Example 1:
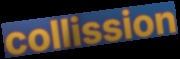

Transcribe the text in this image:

collission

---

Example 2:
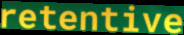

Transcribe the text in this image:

retentive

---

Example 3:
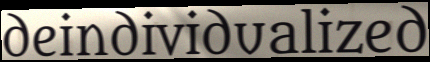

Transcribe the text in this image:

deindividualized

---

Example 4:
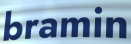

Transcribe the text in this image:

bramin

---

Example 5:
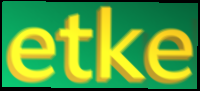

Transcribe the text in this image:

etke